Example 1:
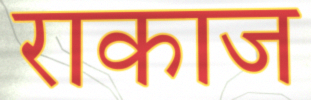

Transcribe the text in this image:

राकाज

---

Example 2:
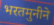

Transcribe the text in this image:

भरतमुनीने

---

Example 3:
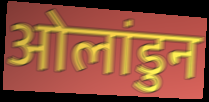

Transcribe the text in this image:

ओलांडुन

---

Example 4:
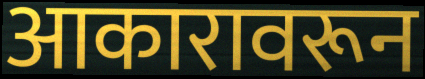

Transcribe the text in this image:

आकारावरून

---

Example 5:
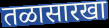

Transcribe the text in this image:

तळासारखा